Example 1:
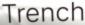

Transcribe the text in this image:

Trench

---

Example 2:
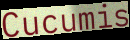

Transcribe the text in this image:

Cucumis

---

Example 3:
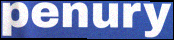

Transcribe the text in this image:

penury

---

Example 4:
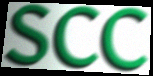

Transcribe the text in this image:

SCC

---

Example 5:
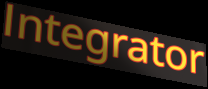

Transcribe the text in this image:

Integrator